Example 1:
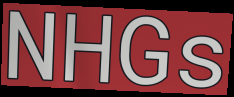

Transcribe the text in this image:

NHGs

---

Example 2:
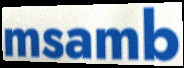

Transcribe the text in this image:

msamb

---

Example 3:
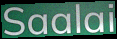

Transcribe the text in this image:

Saalai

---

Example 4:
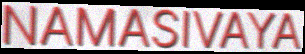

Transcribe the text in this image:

NAMASIVAYA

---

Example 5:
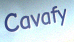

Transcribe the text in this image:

Cavafy